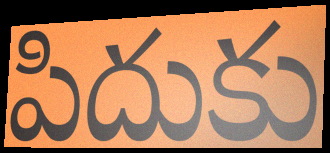
పిదుకు